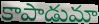
కాపాడుమా